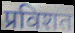
प्रविशत